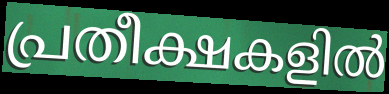
പ്രതീക്ഷകളിൽ